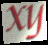
xy